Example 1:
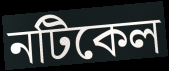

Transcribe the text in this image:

নটিকেল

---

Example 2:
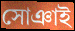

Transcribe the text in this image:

সোঞাই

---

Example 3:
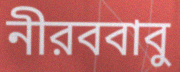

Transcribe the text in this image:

নীরববাবু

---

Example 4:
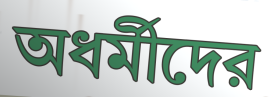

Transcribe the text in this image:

অধর্মীদের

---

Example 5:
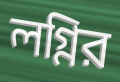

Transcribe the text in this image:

লগ্নির